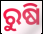
ରୁଷି